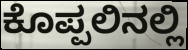
ಕೊಪ್ಪಲಿನಲ್ಲಿ